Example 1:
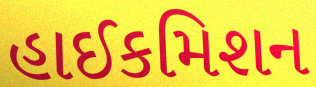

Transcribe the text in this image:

હાઈકમિશન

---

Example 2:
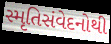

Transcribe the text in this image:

સ્મૃતિસંવેદનોથી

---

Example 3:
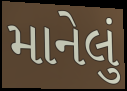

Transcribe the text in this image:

માનેલું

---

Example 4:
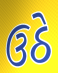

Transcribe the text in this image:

ઉઠે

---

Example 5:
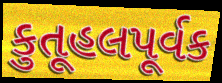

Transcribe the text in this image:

કુતૂહલપૂર્વક